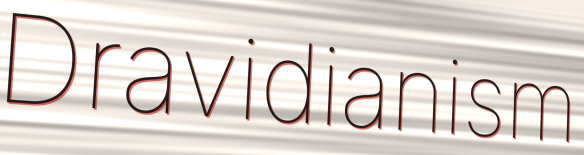
Dravidianism